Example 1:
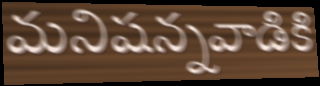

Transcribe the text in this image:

మనిషన్నవాడికి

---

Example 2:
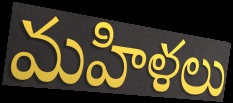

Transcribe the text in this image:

మహిళలు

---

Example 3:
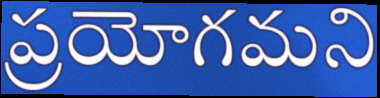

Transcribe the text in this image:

ప్రయోగమని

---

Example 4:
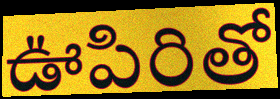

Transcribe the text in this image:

ఊపిరితో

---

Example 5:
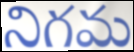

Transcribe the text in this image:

నిగమ